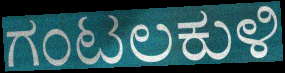
ಗಂಟಲಕುಳಿ